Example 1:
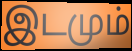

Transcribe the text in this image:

இடமும்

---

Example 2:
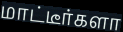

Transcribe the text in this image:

மாட்டீர்களா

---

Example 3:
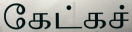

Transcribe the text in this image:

கேட்கச்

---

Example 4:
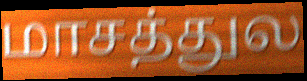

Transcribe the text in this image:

மாசத்துல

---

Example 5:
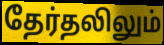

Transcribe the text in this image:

தேர்தலிலும்